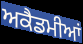
ਅਕੈਡਮੀਆਂ